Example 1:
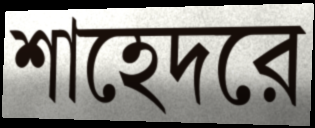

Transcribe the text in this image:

শাহেদরে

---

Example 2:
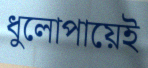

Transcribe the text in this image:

ধুলোপায়েই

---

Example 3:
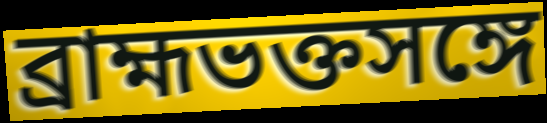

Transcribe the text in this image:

ব্রাহ্মভক্তসঙ্গে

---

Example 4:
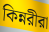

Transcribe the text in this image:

কিন্নরীরা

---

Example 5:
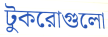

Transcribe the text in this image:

টুকরোগুলো